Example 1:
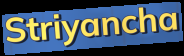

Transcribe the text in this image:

Striyancha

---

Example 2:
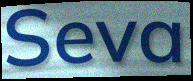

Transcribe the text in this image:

Seva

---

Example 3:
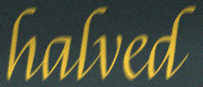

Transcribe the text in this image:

halved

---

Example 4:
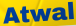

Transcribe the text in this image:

Atwal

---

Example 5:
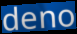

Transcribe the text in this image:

deno